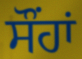
ਸੌਂਹਾਂ